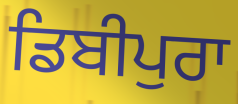
ਡਿਬੀਪੁਰਾ